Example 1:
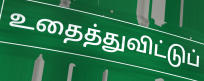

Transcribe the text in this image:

உதைத்துவிட்டுப்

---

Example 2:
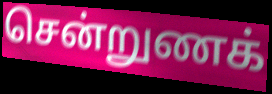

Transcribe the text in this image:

சென்றுணக்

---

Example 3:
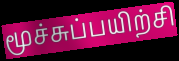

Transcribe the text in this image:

மூச்சுப்பயிற்சி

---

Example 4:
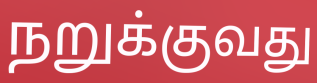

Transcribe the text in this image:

நறுக்குவது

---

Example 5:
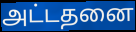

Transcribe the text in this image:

அட்டதனை